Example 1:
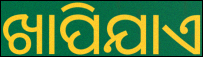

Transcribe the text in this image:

ଖାପିଯାଏ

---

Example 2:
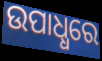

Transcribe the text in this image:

ଉପାଧ୍ଧରେ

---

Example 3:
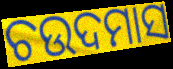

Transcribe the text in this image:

ଚଉଦମାସ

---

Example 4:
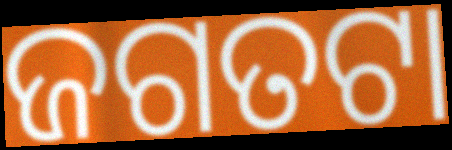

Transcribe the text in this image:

ଜଗତଟା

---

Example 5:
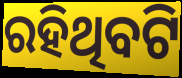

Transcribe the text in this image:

ରହିଥିବଟି